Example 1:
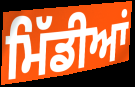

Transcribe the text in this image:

ਮਿੱਡੀਆਂ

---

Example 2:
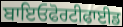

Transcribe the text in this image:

ਬਾਇਓਫੋਰਟੀਫਾਈਡ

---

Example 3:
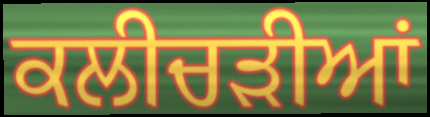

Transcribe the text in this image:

ਕਲੀਚੜੀਆਂ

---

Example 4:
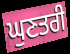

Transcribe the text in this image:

ਘੁਣਤਰੀ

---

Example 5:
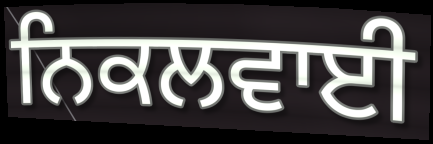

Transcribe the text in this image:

ਨਿਕਲਵਾਈ